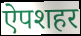
ऐपशहर